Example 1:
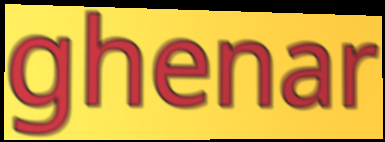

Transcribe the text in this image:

ghenar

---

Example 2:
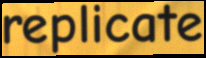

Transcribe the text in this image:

replicate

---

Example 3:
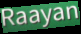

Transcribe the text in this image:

Raayan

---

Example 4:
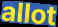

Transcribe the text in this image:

allot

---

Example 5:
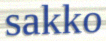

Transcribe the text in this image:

sakko